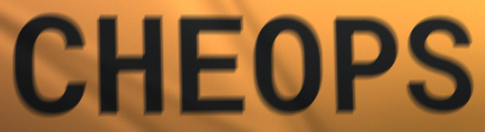
CHEOPS